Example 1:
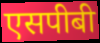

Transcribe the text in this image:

एसपीबी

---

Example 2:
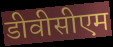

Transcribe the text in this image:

डीवीसीएम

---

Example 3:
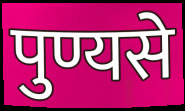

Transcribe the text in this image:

पुण्यसे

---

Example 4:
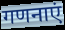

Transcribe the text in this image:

गणनाएं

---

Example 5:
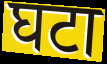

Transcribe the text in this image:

घटा